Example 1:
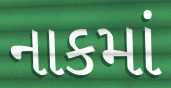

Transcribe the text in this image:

નાકમાં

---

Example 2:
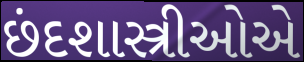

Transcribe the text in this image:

છંદશાસ્ત્રીઓએ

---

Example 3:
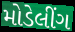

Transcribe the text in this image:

મોડેલીંગ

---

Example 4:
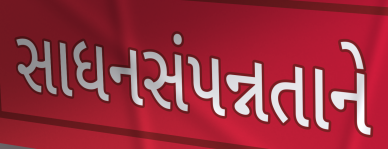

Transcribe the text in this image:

સાધનસંપન્નતાને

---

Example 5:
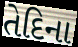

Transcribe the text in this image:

તેદિના